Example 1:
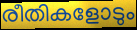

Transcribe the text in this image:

രീതികളോടും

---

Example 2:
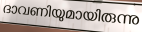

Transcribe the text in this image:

ദാവണിയുമായിരുന്നു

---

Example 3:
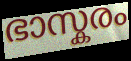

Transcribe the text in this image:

ഭാസ്കരം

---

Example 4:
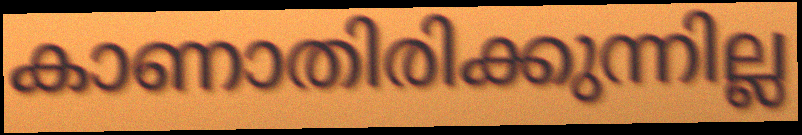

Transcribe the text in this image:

കാണാതിരിക്കുന്നില്ല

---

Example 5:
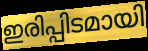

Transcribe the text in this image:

ഇരിപ്പിടമായി